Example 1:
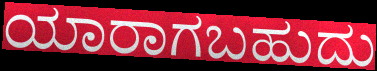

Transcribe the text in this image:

ಯಾರಾಗಬಹುದು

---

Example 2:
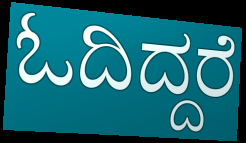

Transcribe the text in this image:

ಓದಿದ್ದರೆ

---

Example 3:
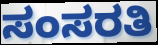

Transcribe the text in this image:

ಸಂಸರತಿ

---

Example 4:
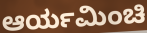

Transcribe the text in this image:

ಆರ್ಯಮಿಂಚಿ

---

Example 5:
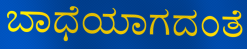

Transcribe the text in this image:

ಬಾಧೆಯಾಗದಂತೆ